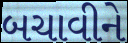
બચાવીને